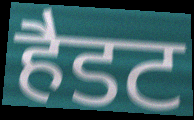
हैडट